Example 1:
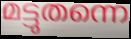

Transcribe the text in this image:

മട്ടുതന്നെ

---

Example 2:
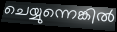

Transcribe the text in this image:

ചെയ്യുന്നെങ്കിൽ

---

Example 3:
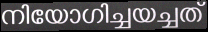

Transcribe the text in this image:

നിയോഗിച്ചയച്ചത്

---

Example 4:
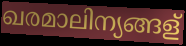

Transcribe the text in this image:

ഖരമാലിന്യങ്ങള്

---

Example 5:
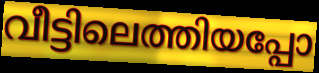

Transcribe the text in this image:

വീട്ടിലെത്തിയപ്പോ